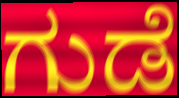
ಗುಡೆ